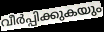
വീർപ്പിക്കുകയും